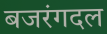
बजरंगदल